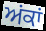
ਅਂਕਾਂ